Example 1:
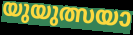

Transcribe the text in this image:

യുയുത്സയാ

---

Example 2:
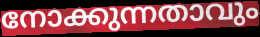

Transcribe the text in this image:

നോക്കുന്നതാവും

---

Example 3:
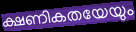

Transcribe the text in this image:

ക്ഷണികതയേയും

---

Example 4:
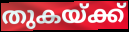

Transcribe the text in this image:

തുകയ്ക്ക്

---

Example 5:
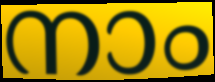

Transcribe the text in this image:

നാം